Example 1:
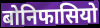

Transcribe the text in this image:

बोनिफासियो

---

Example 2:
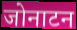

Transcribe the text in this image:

जोनाटन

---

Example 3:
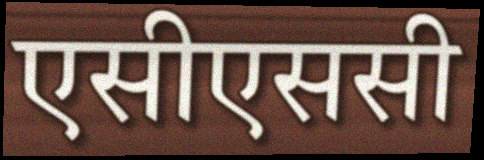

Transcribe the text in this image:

एसीएससी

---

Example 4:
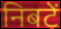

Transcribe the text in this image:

निबटें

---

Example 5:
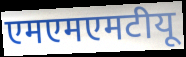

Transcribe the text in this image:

एमएमएमटीयू